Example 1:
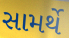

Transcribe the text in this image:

સામર્થે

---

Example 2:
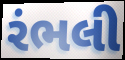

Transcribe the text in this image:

રંભલી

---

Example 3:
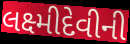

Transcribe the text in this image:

લક્ષ્મીદેવીની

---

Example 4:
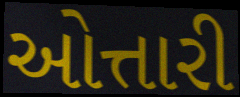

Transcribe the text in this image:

ઓત્તારી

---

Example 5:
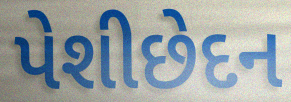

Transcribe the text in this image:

પેશીછેદન